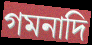
গমনাদি